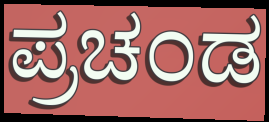
ಪ್ರಚಂಡ